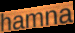
hamna